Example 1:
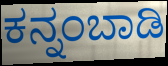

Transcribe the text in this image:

ಕನ್ನಂಬಾಡಿ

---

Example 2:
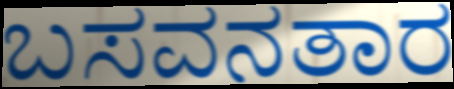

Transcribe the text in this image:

ಬಸವನತಾರ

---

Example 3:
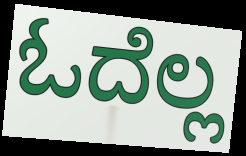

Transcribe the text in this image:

ಓದೆಲ್ಲ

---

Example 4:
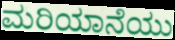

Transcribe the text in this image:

ಮರಿಯಾನೆಯು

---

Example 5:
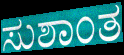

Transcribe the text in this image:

ಸುಶಾಂತ